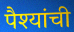
पैश्यांची